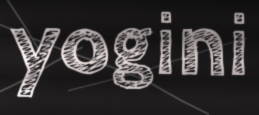
yogini